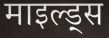
माइल्ड्स